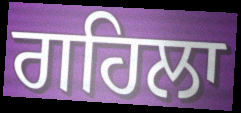
ਗਹਿਲਾ